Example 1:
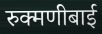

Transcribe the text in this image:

रुक्मणीबाई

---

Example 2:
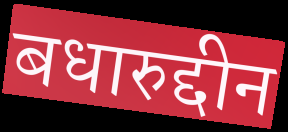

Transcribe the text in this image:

बधारुद्दीन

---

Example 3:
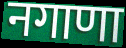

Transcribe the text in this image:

नगाणा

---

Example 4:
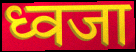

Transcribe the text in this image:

ध्वजा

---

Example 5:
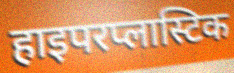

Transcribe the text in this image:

हाइपरप्लास्टिक